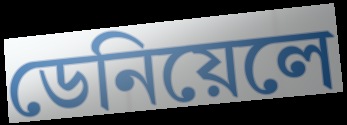
ডেনিয়েলে